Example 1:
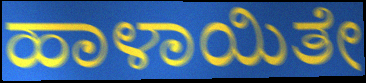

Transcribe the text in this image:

ಹಾಳಾಯಿತೇ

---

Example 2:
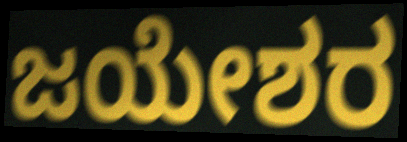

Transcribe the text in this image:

ಜಯೇಶರ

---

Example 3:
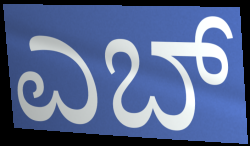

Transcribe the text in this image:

ಎಬ್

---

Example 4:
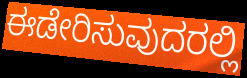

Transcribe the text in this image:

ಈಡೇರಿಸುವುದರಲ್ಲಿ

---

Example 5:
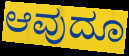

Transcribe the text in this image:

ಆವುದೂ